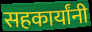
सहकार्यांनी